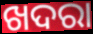
ଖଦରା